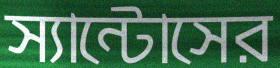
স্যান্টোসের